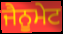
ਜੈਨੂਮੇਟ